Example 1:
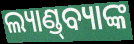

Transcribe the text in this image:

ଲ୍ୟାଣ୍ଡ୍‌ବ୍ୟାଙ୍କ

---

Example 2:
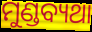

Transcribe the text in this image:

ମୁଣ୍ଡବ୍ୟଥା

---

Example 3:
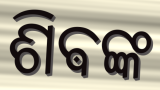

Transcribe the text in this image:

ଶିଵଙ୍କ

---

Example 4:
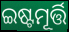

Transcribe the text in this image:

ଇଷ୍ଟମୂର୍ତ୍ତି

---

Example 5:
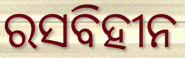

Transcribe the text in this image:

ରସବିହୀନ